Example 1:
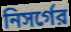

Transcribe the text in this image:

নিসর্গের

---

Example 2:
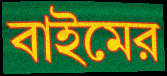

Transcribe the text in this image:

বাইমের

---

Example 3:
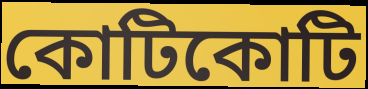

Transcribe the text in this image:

কোটিকোটি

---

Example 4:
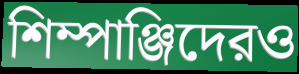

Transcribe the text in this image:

শিম্পাঞ্জিদেরও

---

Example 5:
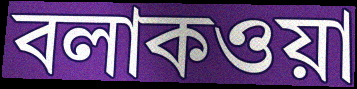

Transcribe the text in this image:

বলাকওয়া